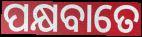
ପକ୍ଷବାତେ